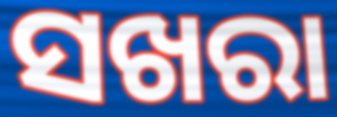
ସଖରା